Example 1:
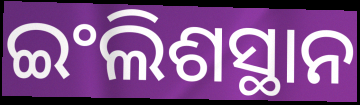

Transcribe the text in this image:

ଇଂଲିଶସ୍ଥାନ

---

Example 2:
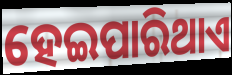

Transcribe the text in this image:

ହେଇପାରିଥାଏ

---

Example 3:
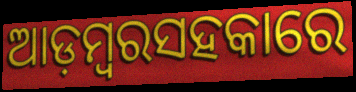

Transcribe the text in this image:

ଆଡ଼ମ୍ବରସହକାରେ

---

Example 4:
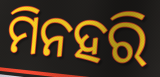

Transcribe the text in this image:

ମିନହରି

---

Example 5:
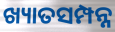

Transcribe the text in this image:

ଖ୍ୟାତସମ୍ପନ୍ନ